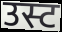
उस्ट